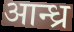
आन्ध्र